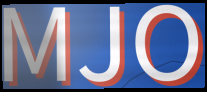
MJO